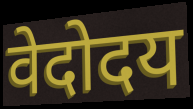
वेदोदय